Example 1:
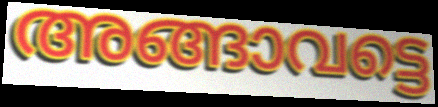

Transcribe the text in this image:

അങ്ങാവട്ടെ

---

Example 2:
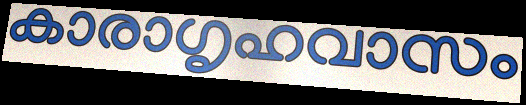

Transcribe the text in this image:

കാരാഗൃഹവാസം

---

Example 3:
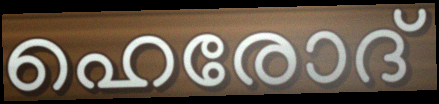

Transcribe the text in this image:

ഹെരോദ്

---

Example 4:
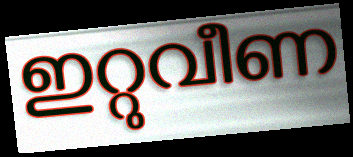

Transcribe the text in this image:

ഇറ്റുവീണ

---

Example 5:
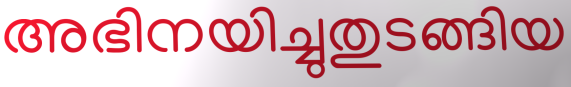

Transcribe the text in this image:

അഭിനയിച്ചുതുടങ്ങിയ